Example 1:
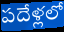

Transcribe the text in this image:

పదేళ్లలో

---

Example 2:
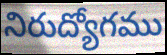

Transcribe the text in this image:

నిరుద్యోగము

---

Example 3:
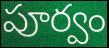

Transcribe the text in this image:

పూర్వం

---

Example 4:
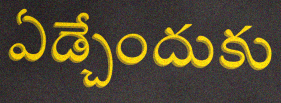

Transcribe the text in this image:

ఏడ్చేందుకు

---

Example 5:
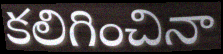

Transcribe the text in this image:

కలిగించినా